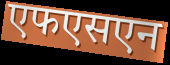
एफएसएन